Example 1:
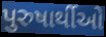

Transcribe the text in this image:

પુરુષાર્થીઓ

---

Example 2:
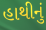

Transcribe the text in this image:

હાથીનું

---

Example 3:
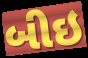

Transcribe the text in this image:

બીઇ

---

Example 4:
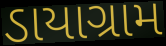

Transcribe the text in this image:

ડાયાગ્રામ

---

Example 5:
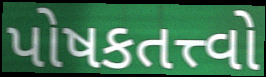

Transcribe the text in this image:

પોષકતત્ત્વો